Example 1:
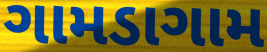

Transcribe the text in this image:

ગામડાગામ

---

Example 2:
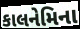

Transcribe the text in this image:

કાલનેમિના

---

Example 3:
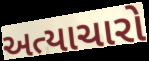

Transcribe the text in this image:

અત્યાચારો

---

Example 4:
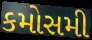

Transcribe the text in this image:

કમોસમી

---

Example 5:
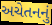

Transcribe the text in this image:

અચેતનનું